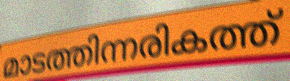
മാടത്തിന്നരികത്ത്